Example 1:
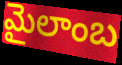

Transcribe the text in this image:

మైలాంబ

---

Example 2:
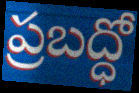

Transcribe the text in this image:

ప్రబద్ధో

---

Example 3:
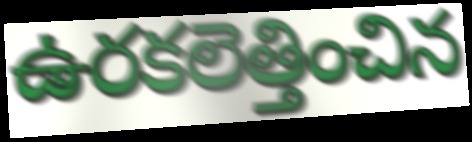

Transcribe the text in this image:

ఉరకలెత్తించిన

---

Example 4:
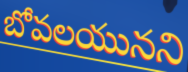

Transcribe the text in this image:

బోవలయునని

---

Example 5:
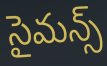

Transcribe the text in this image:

సైమన్స్